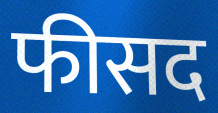
फीसद